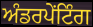
ਅੰਡਰਪੇਂਟਿੰਗ